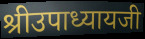
श्रीउपाध्यायजी